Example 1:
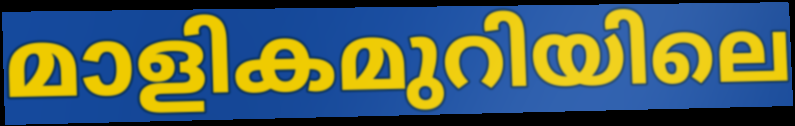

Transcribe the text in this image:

മാളികമുറിയിലെ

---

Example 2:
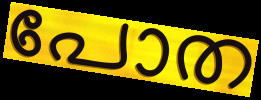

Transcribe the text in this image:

പോത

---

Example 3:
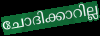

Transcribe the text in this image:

ചോദിക്കാറില്ല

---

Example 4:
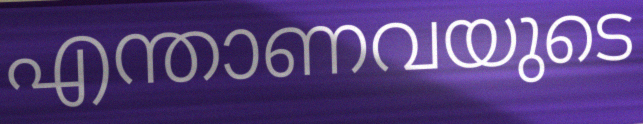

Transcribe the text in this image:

എന്താണവയുടെ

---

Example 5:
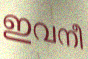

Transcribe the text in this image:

ഇവനീ